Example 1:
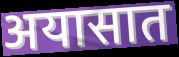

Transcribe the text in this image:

अयासात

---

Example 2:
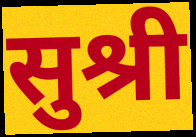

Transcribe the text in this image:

सुश्री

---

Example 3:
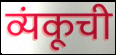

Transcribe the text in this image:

व्यंकूची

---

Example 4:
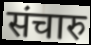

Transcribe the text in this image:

संचारु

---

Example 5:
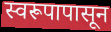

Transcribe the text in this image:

स्वरूपापासून